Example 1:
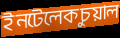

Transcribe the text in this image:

ইনটেলেকচুয়াল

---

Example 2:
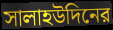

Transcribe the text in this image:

সালাহউদিনের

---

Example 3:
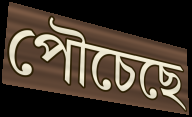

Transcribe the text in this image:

পৌচেছে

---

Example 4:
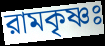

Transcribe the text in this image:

রামকৃষ্ণঃ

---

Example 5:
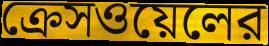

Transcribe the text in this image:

ক্রেসওয়েলের